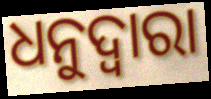
ଧନୁଦ୍ୱାରା